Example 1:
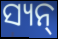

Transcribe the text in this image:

ସ୍ୟନ୍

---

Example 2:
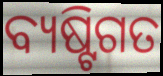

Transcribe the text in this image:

ବ୍ୟଷ୍ଟିଗତ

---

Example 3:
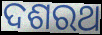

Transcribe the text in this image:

ଦଶରଥ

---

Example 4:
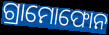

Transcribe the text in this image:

ଗ୍ରାମୋଫୋନ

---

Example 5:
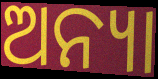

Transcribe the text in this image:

ଅନ୍ୟା